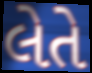
લેતે